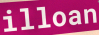
illoan